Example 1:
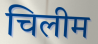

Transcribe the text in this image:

चिलीम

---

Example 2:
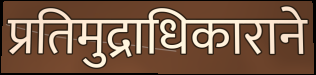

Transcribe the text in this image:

प्रतिमुद्राधिकाराने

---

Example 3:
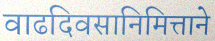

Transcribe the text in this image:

वाढदिवसानिमित्ताने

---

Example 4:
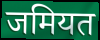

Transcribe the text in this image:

जमियत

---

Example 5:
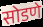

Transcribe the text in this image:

सोडणे